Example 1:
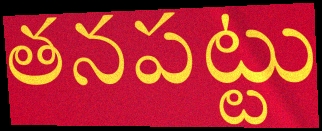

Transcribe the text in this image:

తనపట్టు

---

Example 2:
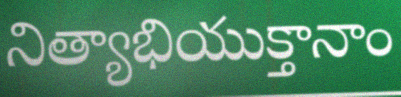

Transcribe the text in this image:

నిత్యాభియుక్తానాం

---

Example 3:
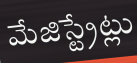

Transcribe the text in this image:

మేజిస్ట్రేట్లు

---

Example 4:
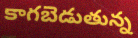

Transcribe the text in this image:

కాగబెడుతున్న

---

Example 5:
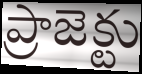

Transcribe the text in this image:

ప్రాజెక్టు